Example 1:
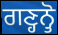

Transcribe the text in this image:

ਗਣ੍ਹਨ੍ਤੋ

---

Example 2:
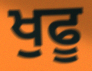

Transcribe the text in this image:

ਖੁਫੂ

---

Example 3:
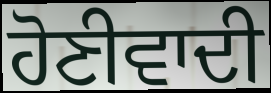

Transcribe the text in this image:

ਹੋਣੀਵਾਦੀ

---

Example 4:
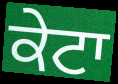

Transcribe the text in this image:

ਕੇਟਾ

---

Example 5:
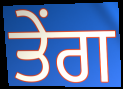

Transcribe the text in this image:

ਤੇਂਗ